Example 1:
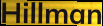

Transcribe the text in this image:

Hillman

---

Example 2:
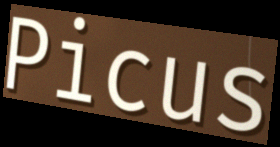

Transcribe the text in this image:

Picus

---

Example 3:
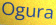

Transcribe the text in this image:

Ogura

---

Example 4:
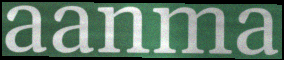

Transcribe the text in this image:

aanma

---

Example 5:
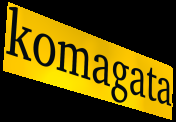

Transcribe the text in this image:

komagata